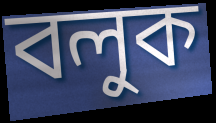
বলুক